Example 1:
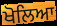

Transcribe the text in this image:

ਖੋਲਿਆ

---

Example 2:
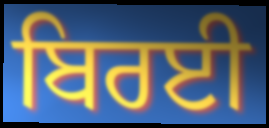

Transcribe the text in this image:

ਬਿਰਈ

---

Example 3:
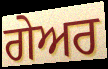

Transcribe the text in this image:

ਗੇਅਰ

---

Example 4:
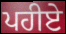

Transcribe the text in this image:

ਪਹੀਏ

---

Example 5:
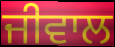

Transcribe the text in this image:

ਜੀਵਾਲ